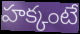
హక్కంటే